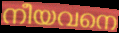
നീയവനെ